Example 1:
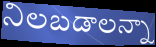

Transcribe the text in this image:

నిలబడాలన్నా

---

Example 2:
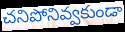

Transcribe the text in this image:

చనిపోనివ్వకుండా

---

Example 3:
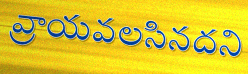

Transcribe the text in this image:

వ్రాయవలసినదని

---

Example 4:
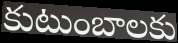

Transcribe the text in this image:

కుటుంబాలకు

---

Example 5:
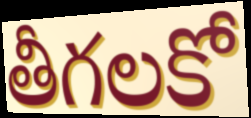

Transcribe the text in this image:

తీగలకో